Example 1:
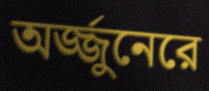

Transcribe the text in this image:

অর্জ্জুনেরে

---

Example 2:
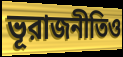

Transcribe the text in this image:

ভূরাজনীতিও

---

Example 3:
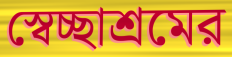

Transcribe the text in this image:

স্বেচ্ছাশ্রমের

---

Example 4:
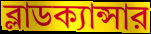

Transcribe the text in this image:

ব্লাডক্যান্সার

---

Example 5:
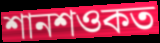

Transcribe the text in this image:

শানশওকত